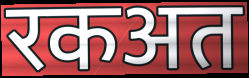
रकअत